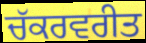
ਚੱਕਰਵਰੀਤ